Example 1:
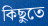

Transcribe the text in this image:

কিছুতে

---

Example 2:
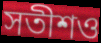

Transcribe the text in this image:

সতীশও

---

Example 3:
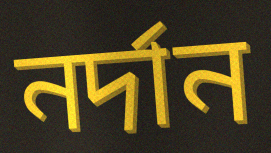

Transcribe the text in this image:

নর্দান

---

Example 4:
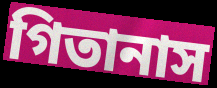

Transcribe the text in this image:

গিতানাস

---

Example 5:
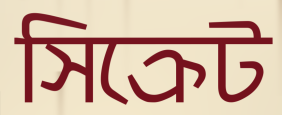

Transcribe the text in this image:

সিক্রেট